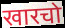
खारचो